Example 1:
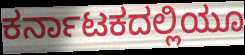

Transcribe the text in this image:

ಕರ್ನಾಟಕದಲ್ಲಿಯೂ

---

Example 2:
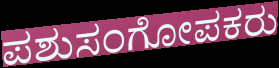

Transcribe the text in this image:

ಪಶುಸಂಗೋಪಕರು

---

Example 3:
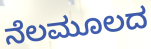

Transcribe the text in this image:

ನೆಲಮೂಲದ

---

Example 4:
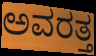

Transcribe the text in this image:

ಅವರತ್ತ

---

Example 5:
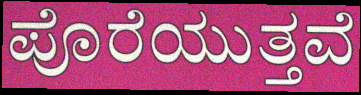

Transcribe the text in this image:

ಪೊರೆಯುತ್ತವೆ